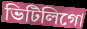
ভিটিলিগো